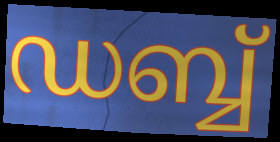
ഡബ്ബ്